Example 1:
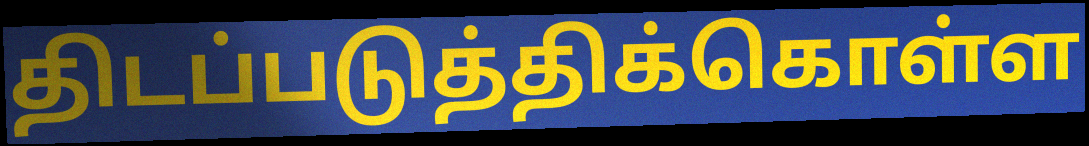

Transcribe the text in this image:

திடப்படுத்திக்கொள்ள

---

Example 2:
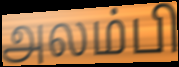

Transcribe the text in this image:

அலம்பி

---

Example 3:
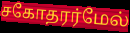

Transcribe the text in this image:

சகோதரர்மேல்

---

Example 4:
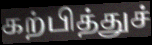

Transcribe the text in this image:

கற்பித்துச்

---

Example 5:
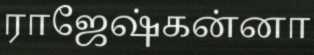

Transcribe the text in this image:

ராஜேஷ்கன்னா